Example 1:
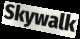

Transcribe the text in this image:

Skywalk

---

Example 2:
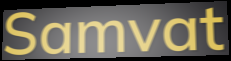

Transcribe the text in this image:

Samvat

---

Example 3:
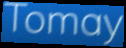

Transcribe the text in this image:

Tomay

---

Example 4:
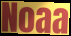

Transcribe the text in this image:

Noaa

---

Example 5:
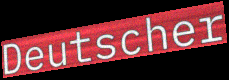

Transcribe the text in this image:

Deutscher